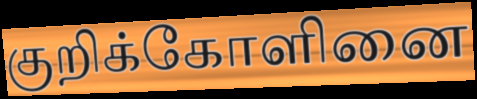
குறிக்கோளினை